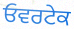
ਓਵਰਟੇਕ